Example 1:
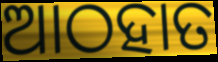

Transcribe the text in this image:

ଆଠହାତ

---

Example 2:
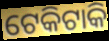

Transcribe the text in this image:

ଟେକିଟାକି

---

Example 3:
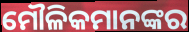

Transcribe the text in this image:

ମୌଳିକମାନଙ୍କର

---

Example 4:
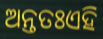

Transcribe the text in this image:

ଅନ୍ତତଃଏହି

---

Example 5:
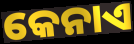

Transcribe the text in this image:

କେନାଏ